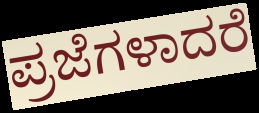
ಪ್ರಜೆಗಳಾದರೆ